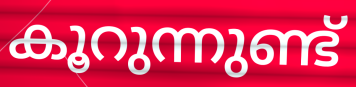
കൂറുന്നുണ്ട്